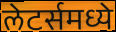
लेटर्समध्ये